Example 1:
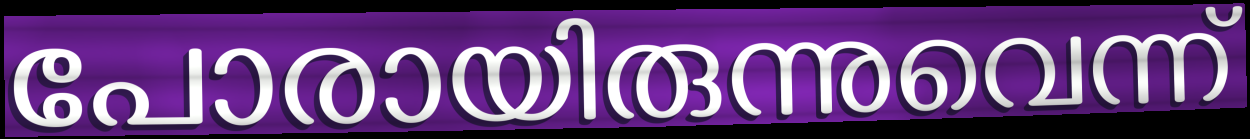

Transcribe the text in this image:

പോരായിരുന്നുവെന്ന്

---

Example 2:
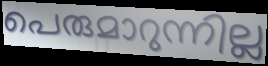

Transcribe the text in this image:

പെരുമാറുന്നില്ല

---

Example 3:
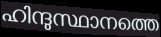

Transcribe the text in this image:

ഹിന്ദുസ്ഥാനത്തെ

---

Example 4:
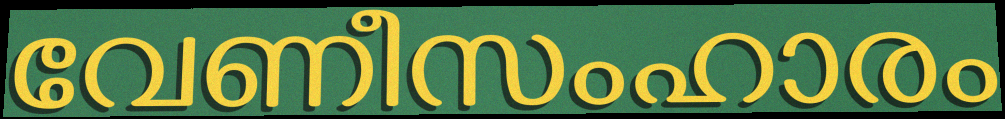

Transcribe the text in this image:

വേണീസംഹാരം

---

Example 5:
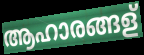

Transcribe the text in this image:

ആഹാരങ്ങള്